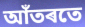
আঁতৰতে